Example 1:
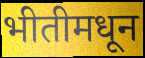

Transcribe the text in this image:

भीतीमधून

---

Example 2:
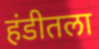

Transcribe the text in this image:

हंडीतला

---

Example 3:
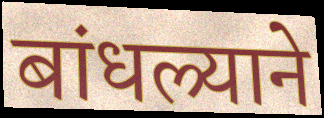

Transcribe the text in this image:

बांधल्याने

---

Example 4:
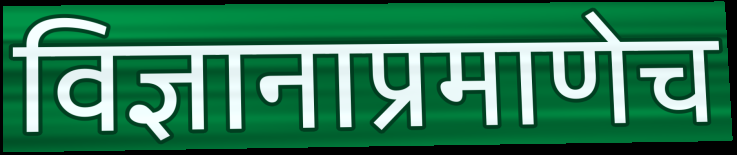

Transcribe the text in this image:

विज्ञानाप्रमाणेच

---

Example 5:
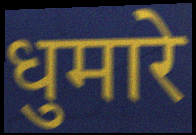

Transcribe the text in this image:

धुमारे